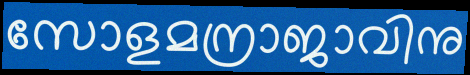
സോളമന്രാജാവിനു